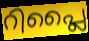
റിപ്ലൈ